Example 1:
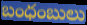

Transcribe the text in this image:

బంధంబులు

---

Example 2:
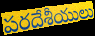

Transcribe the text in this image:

పరదేశీయులు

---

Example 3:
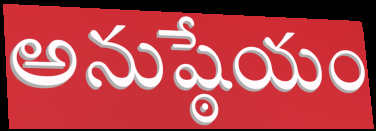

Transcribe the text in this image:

అనుష్ఠేయం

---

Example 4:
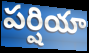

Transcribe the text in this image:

పర్షియా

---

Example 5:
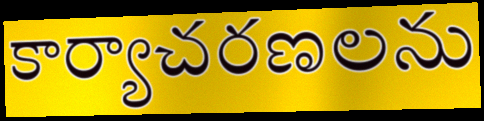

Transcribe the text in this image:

కార్యాచరణలను